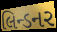
લિન્ડનર